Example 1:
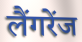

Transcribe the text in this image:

लैंगरेंज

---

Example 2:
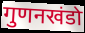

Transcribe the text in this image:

गुणनखंडो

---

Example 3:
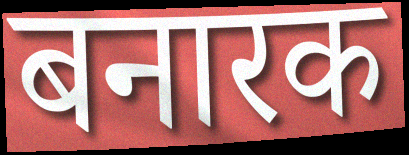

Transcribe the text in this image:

बनारक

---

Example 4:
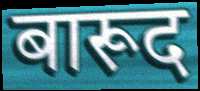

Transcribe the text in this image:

बारूद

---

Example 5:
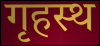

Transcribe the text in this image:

गृहस्‍थ